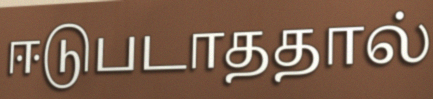
ஈடுபடாததால்